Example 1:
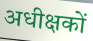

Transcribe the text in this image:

अधीक्षकों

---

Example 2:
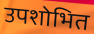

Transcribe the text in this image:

उपशोभित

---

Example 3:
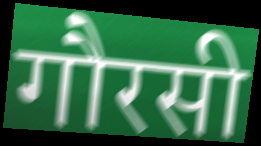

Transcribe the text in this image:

गौरसी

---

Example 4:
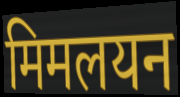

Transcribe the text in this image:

मिमलयन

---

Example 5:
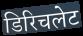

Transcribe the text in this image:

डिरिचलेट